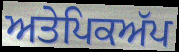
ਅਤੇਪਿਕਅੱਪ